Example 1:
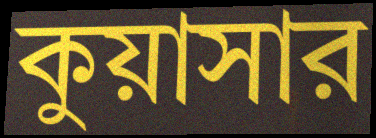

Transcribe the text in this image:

কুয়াসার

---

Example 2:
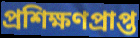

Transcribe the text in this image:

প্রশিক্ষণপ্রাপ্ত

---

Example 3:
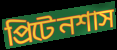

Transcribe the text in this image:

প্রিটেনশাস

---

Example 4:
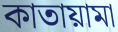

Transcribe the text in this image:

কাতায়ামা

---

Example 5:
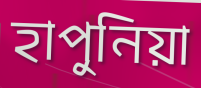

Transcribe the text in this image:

হাপুনিয়া